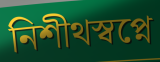
নিশীথস্বপ্নে